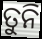
ତୁନି